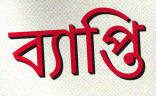
ব্যাপ্তি